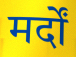
मर्दों